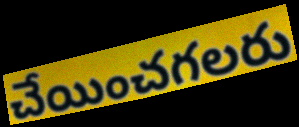
చేయించగలరు